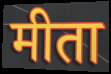
मीता